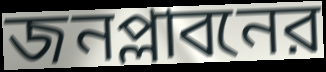
জনপ্লাবনের